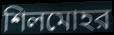
শিলমোহর